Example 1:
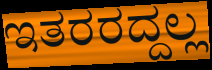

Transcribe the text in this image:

ಇತರರದ್ದಲ್ಲ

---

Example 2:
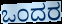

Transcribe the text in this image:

ಒಂದರ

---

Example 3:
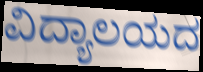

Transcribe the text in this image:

ವಿದ್ಯಾಲಯದ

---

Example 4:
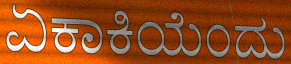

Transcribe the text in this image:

ಏಕಾಕಿಯೆಂದು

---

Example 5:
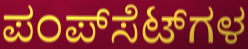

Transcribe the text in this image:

ಪಂಪ್‌ಸೆಟ್‌ಗಳ